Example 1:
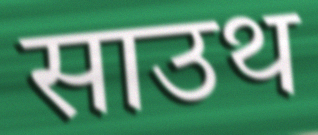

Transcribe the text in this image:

साउथ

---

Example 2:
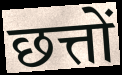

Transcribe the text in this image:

छत्तों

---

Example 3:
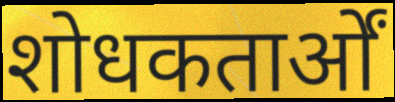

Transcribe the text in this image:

शोधकतार्ओं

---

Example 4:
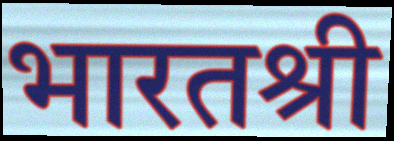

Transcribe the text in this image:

भारतश्री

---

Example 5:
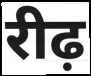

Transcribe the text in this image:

रीढ़